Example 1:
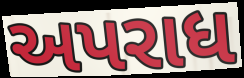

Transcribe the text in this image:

અપરાધ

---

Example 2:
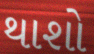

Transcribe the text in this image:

થાશો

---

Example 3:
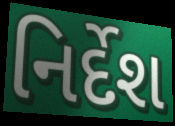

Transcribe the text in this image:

નિર્દેશ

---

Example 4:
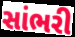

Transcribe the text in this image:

સાંભરી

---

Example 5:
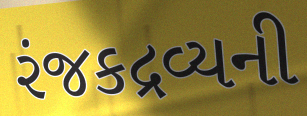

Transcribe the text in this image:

રંજકદ્રવ્યની